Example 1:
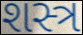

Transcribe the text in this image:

શસ્ત્ર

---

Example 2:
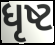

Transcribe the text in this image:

ધૃષ્ટ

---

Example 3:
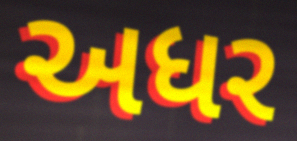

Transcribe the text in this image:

અધર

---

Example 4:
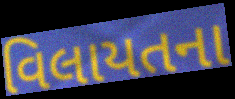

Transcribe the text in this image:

વિલાયતના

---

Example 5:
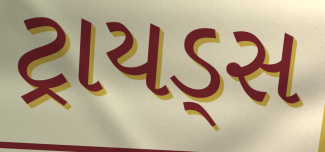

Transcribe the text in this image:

ટ્રાયડ્સ